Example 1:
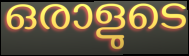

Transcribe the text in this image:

ഒരാളുടെ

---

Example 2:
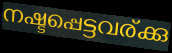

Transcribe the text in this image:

നഷ്ടപ്പെട്ടവര്ക്കു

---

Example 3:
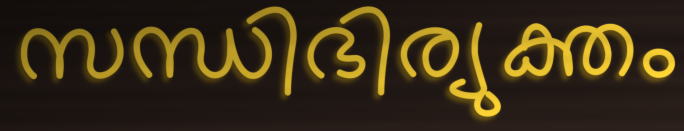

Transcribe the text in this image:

സന്ധിഭിര്യുക്തം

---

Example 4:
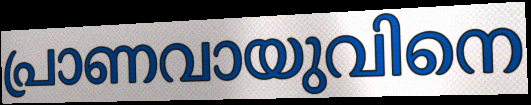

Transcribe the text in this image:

പ്രാണവായുവിനെ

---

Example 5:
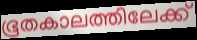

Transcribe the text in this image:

ഭൂതകാലത്തിലേക്ക്